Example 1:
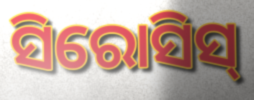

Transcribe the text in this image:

ସିରୋସିସ୍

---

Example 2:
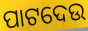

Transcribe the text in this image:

ପାଟଦେଉ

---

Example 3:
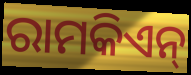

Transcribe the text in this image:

ରାମକିଏନ୍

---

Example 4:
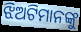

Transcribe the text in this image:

ଝିଅଟିମାନଙ୍କୁ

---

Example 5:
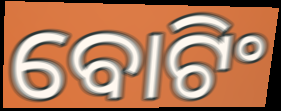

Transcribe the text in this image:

ବୋଟିଂ